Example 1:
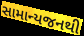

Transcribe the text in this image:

સામાન્યજનથી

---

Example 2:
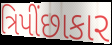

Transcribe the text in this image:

ત્રિપીંછાકાર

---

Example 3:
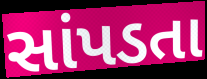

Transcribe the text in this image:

સાંપડતા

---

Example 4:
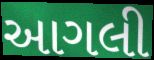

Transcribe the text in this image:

આગલી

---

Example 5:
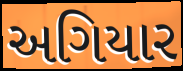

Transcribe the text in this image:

અગિયાર